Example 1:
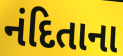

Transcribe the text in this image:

નંદિતાના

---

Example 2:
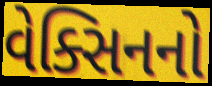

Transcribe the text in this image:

વેક્સિનનો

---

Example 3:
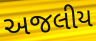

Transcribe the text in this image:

અજલીય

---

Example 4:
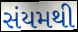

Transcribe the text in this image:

સંયમથી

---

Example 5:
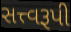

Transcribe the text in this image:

સત્ત્વરૂપી